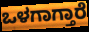
ಒಳಗಾಗ್ತಾರೆ